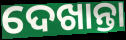
ଦେଖାନ୍ତା